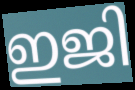
ഇജി